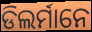
ଡିଲର୍ମାନେ